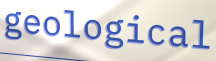
geological